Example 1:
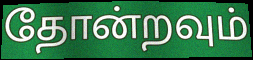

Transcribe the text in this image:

தோன்றவும்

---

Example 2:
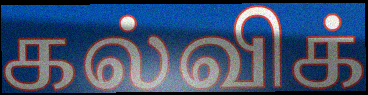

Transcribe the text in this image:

கல்விக்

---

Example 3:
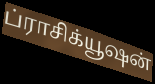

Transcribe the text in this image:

ப்ராசிக்யூஷன்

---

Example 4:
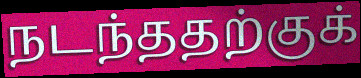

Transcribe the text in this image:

நடந்ததற்குக்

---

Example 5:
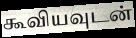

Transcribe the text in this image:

கூவியவுடன்